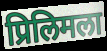
प्रिलिमला